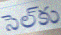
సెల్‌కు